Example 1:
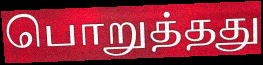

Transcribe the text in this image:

பொறுத்தது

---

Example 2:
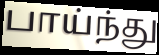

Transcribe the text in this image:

பாய்ந்து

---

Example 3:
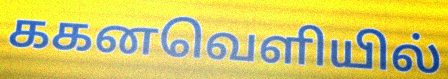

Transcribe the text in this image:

ககனவெளியில்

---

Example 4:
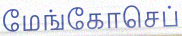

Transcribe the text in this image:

மேங்கோசெப்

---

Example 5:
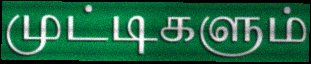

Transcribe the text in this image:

முட்டிகளும்